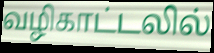
வழிகாட்டலில்